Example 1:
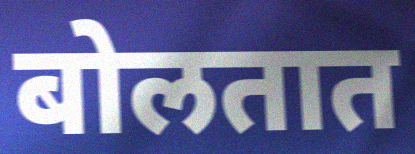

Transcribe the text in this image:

बोलतात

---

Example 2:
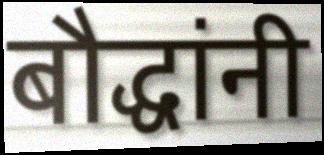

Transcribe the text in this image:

बौद्धांनी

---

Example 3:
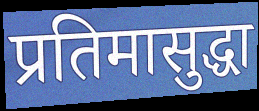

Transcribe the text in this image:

प्रतिमासुद्धा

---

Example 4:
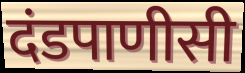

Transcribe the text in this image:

दंडपाणीसी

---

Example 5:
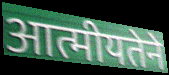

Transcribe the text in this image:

आत्मीयतेने